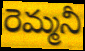
రెమ్మనీ